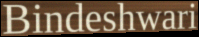
Bindeshwari